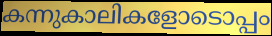
കന്നുകാലികളോടൊപ്പം